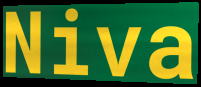
Niva